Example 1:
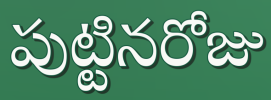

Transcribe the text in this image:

పుట్టినరోజు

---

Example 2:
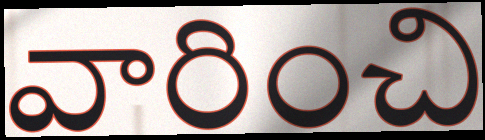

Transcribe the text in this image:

వారించి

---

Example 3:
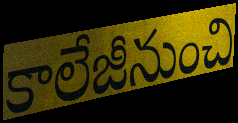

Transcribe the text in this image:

కాలేజీనుంచి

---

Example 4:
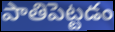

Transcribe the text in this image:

పాతిపెట్టడం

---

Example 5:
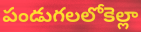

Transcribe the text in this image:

పండుగలలోకెల్లా